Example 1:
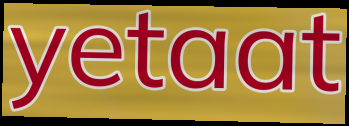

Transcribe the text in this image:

yetaat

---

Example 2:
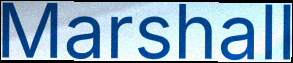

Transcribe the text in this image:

Marshall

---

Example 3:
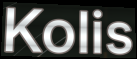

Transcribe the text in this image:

Kolis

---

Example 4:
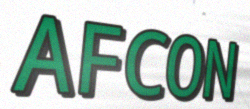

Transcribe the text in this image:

AFCON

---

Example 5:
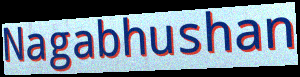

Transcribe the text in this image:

Nagabhushan